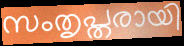
സംതൃപ്തരായി